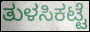
ತುಳಸಿಕಟ್ಟೆ